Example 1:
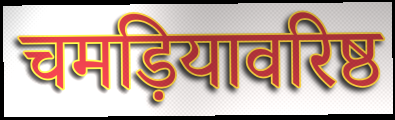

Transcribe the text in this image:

चमड़ियावरिष्ठ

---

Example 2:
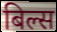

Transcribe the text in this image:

बिल्स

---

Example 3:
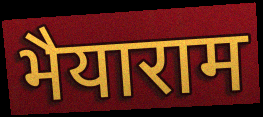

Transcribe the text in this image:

भैयाराम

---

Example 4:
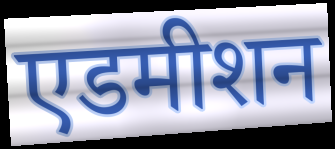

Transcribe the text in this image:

एडमीशन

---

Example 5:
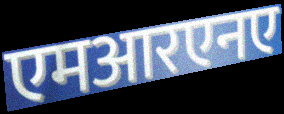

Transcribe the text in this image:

एमआरएनए